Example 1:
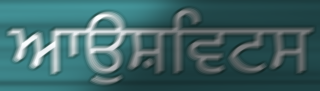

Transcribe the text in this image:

ਆਉਸ਼ਵਿਟਸ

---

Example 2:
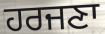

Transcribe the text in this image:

ਹਰਜਣਾ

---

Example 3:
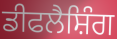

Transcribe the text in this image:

ਡੀਫਲੈਸ਼ਿੰਗ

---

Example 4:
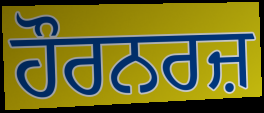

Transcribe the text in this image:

ਹੌਰਨਰਜ਼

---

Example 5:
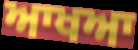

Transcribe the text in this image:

ਆਖਆ